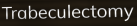
Trabeculectomy